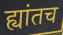
ह्यांतच